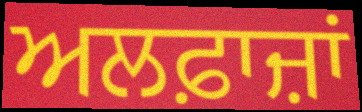
ਅਲਫ਼ਾਜ਼ਾਂ